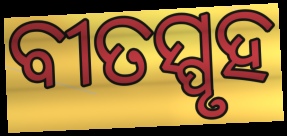
ବୀତସ୍ପୃହ